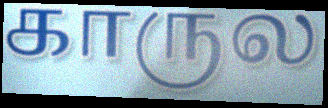
காருல